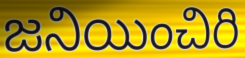
జనియించిరి